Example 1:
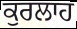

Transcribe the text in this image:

ਕੁਰਲਾਹ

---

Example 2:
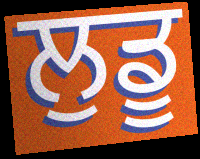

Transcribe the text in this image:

ਲੁਡੂ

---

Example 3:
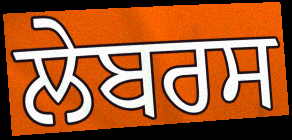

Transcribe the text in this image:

ਲੇਬਰਸ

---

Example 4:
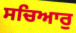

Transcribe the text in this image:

ਸਚਿਆਰੁ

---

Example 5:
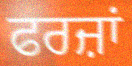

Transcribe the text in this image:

ਫਰਜ਼ਾਂ